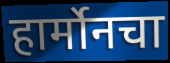
हार्मोनचा